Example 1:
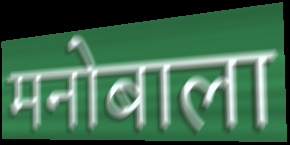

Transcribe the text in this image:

मनोबाला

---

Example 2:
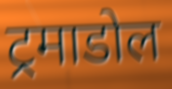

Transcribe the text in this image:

ट्रमाडोल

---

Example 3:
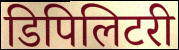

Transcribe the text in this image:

डिपिलिटरी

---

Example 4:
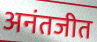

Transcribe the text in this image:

अनंतजीत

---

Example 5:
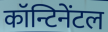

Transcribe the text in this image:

कॉन्टिनेंटल